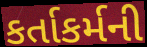
કર્તાકર્મની